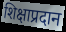
शिक्षाप्रदान